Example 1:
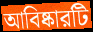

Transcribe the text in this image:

আবিষ্কারটি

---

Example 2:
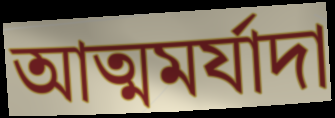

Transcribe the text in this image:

আত্মমর্যাদা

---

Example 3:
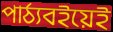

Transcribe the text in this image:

পাঠ্যবইয়েই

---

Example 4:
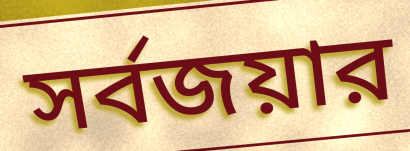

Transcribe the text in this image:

সর্বজয়ার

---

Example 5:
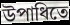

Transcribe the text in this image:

উপাধিতে